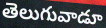
తెలుగువాడూ